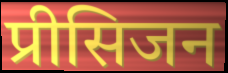
प्रीसिजन